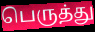
பெருத்து